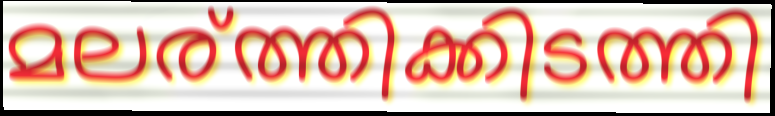
മലര്ത്തിക്കിടത്തി